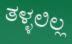
ತಳ್ಳಲಿಲ್ಲ